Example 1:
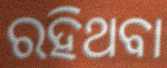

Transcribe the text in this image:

ରହିଥବା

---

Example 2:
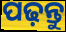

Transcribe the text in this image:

ପଢ଼ନ୍ତୁ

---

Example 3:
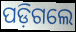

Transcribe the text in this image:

ପଡ଼ିଗଲେ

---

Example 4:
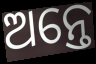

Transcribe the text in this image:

ଅନ୍ତେ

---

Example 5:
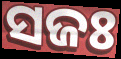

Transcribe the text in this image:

ସଜଃ